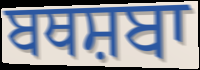
ਬਥਸ਼ਬਾ